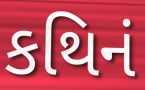
કથિનં